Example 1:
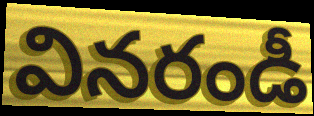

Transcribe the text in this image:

వినరండీ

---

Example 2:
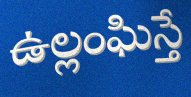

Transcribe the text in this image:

ఉల్లంఘిస్తే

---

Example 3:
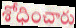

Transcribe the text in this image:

శోధించారు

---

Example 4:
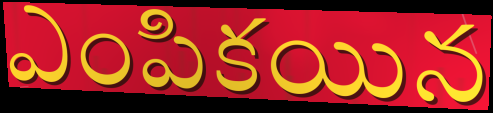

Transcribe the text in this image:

ఎంపికయిన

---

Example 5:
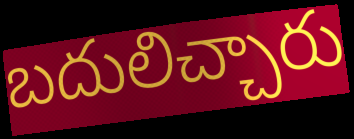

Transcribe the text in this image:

బదులిచ్చారు